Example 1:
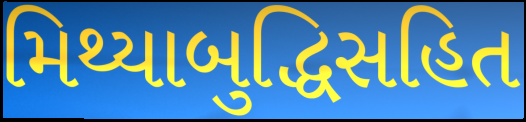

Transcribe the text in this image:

મિથ્યાબુદ્ધિસહિત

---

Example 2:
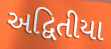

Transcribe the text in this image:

અદ્વિતીયા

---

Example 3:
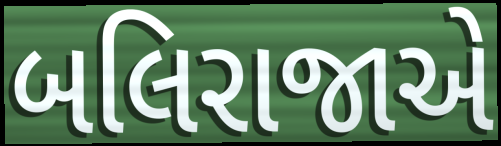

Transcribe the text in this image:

બલિરાજાએ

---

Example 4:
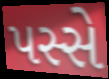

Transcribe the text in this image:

પસ્સે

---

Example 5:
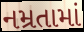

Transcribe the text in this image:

નમ્રતામાં